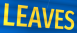
LEAVES